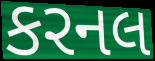
કરનલ